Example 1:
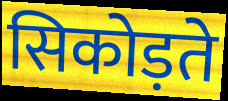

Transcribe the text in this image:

सिकोड़ते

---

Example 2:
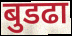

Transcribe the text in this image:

बुडढा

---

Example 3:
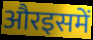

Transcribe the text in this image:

औरइसमें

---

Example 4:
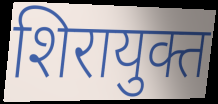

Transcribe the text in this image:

शिरायुक्त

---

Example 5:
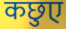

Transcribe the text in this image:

कछुए